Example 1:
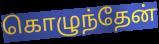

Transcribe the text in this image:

கொழுந்தேன்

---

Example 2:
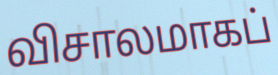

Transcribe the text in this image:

விசாலமாகப்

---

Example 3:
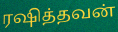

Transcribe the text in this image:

ரஷித்தவன்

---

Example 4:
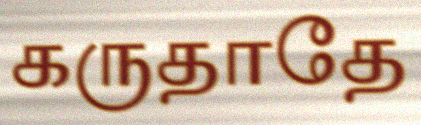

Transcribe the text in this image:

கருதாதே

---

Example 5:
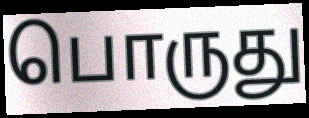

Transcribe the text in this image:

பொருது